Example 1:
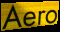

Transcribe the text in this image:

Aero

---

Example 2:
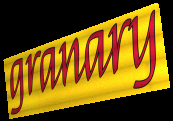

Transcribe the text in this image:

granary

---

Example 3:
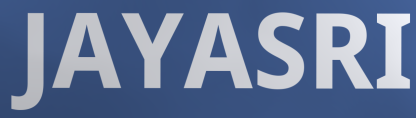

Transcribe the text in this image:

JAYASRI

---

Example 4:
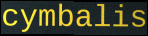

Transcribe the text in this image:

cymbalis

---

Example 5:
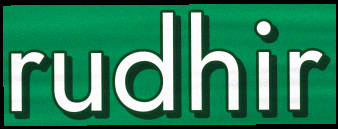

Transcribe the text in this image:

rudhir